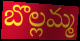
బొల్లమ్మ